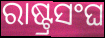
ରାଷ୍ଟ୍ରସଂଘ